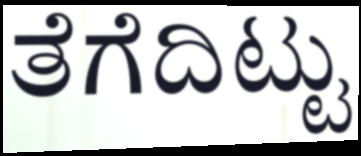
ತೆಗೆದಿಟ್ಟು